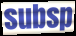
subsp